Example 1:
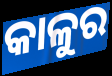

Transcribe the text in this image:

କାଳୁର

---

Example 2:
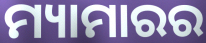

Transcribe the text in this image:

ମ୍ୟାମାରର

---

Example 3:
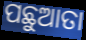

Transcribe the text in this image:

ପଛୁଆତା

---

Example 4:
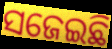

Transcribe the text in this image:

ସଜେଇଛି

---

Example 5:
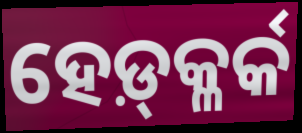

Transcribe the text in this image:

ହେଡ଼୍‍କ୍ଳର୍କ